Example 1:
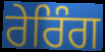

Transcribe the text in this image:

ਰੇਰਿੰਗ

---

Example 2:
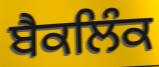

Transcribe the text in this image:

ਬੈਕਲਿੰਕ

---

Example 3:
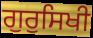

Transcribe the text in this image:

ਗੁਰੁਸਿਖੀ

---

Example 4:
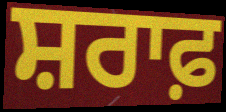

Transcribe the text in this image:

ਸ਼ਰਾਫ਼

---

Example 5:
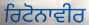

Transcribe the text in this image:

ਰਿਟੋਨਾਵੀਰ